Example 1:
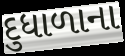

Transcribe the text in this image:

દુધાળાના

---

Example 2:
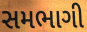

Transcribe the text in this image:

સમભાગી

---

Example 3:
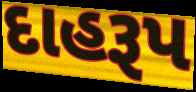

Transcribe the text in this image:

દાહરૂપ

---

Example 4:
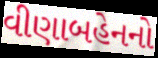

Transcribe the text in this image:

વીણાબહેનનો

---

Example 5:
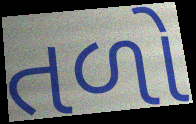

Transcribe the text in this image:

તળો